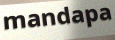
mandapa